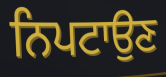
ਨਿਪਟਾਉਣ